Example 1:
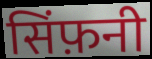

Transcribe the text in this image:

सिंफ़नी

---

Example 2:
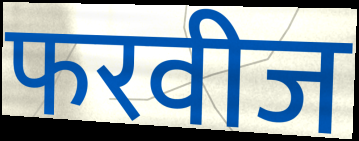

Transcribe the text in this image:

फरवीज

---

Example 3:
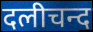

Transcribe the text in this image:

दलीचन्द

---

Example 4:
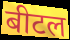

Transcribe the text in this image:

बीटल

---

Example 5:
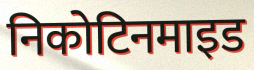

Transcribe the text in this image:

निकोटिनमाइड